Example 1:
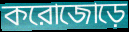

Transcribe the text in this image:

করোজোড়ে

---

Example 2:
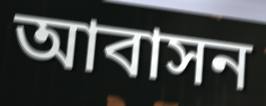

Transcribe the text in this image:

আবাসন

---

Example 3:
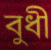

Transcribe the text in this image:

বুধী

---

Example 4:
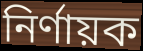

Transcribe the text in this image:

নির্ণায়ক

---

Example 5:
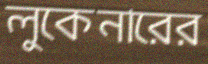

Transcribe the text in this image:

লুকেনারের